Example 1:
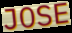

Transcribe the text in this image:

JOSE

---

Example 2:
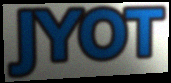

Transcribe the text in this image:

JYOT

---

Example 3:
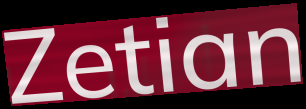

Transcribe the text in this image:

Zetian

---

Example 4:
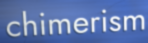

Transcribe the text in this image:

chimerism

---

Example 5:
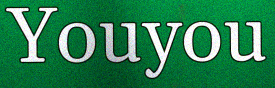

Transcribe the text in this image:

Youyou